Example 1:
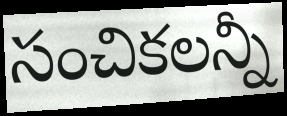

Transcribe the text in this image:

సంచికలన్నీ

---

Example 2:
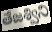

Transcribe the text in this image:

తేజశ్విని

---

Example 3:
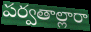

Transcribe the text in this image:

పర్వతాల్లారా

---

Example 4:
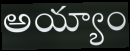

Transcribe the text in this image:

అయ్యాం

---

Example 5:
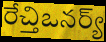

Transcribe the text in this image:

రేచ్తిఒనర్య్